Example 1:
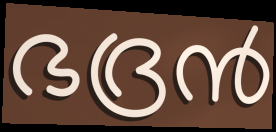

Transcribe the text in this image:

ഭദ്രൻ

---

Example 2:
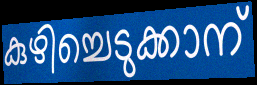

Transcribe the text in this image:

കുഴിച്ചെടുക്കാന്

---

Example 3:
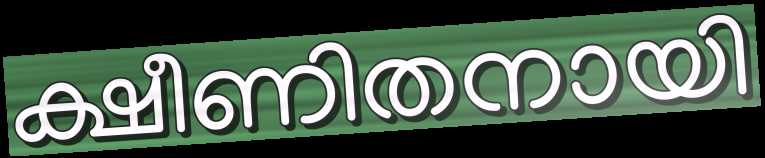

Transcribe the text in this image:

ക്ഷീണിതനായി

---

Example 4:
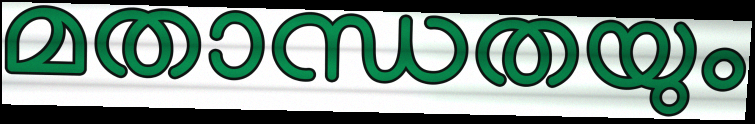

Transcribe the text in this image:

മതാന്ധതയും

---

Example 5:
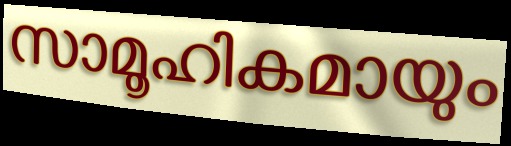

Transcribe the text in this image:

സാമൂഹികമായും